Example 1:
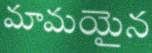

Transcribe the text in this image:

మామయైన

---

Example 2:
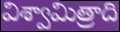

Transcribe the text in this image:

విశ్వామిత్రాది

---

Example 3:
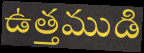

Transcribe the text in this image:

ఉత్తముడి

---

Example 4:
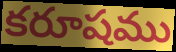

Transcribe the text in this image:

కరూషము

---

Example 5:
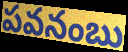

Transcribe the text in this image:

పవనంబు